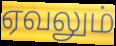
ஏவலும்